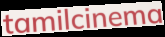
tamilcinema